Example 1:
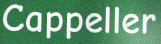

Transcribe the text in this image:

Cappeller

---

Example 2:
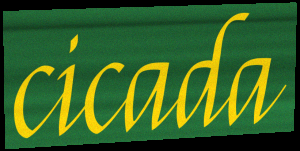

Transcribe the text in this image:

cicada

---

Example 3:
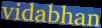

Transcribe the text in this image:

vidabhan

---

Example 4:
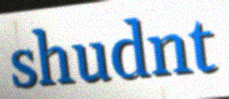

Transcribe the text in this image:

shudnt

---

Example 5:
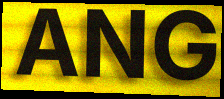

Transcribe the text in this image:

ANG